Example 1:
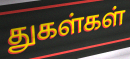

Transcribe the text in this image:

துகள்கள்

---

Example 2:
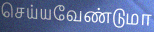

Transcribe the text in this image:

செய்யவேண்டுமா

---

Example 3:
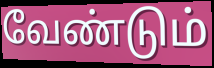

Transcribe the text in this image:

வேண்டும்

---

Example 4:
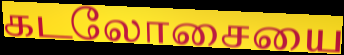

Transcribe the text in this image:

கடலோசையை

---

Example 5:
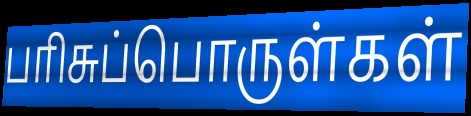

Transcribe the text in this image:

பரிசுப்பொருள்கள்